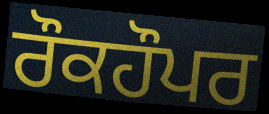
ਰੌਕਹੌਪਰ